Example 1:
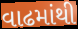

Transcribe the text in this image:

વાઢમાંથી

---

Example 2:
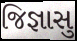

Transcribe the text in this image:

જિજ્ઞાસુ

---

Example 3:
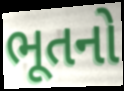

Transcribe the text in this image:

ભૂતનો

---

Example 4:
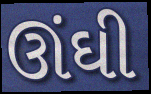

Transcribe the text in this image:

ઊંઘી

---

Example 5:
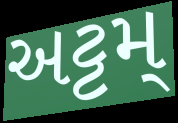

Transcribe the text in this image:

અટ્ટમ્